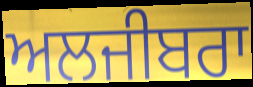
ਅਲਜੀਬਰਾ